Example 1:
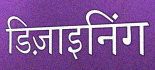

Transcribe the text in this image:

डिज़ाइनिंग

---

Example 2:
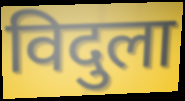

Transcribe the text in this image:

विदुला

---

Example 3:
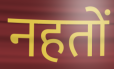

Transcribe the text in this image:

नहतों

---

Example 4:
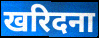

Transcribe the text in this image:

खरिदना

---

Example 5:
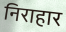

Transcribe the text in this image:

निराहार